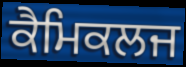
ਕੈਮਿਕਲਜ